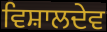
ਵਿਸ਼ਾਲਦੇਵ